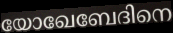
യോഖേബേദിനെ